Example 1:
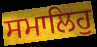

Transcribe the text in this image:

ਸਮਾਲਿਹੁ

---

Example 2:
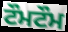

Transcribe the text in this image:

ਟੌਮਟੌਮ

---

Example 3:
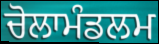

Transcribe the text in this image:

ਚੋਲਾਮੰਡਲਮ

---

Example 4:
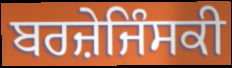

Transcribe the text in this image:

ਬਰਜ਼ੇਜਿੰਸਕੀ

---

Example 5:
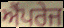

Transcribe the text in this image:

ਐਂਪਰੇਜ